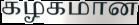
கழகமான